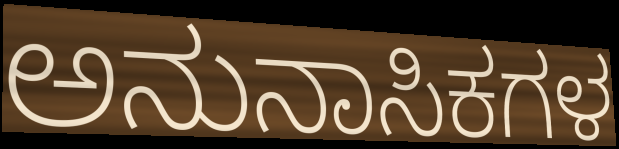
ಅನುನಾಸಿಕಗಳ